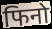
फिनो